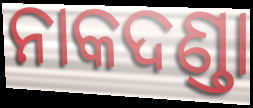
ନାକଦଣ୍ଡା